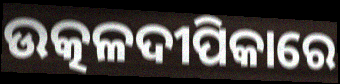
ଉତ୍କଳଦୀପିକାରେ